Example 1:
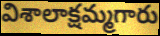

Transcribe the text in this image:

విశాలాక్షమ్మగారు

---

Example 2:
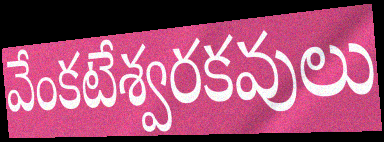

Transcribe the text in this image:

వేంకటేశ్వరకవులు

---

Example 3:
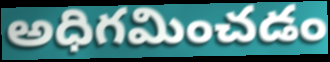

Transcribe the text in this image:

అధిగమించడం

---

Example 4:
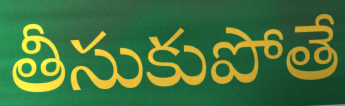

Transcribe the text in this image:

తీసుకుపోతే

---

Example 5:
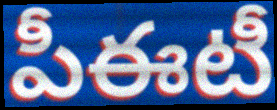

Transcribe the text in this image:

పీఈటీ